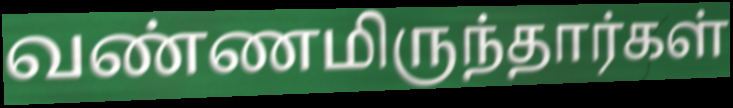
வண்ணமிருந்தார்கள்